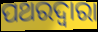
ପଥରଦ୍ୱାରା